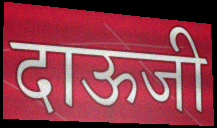
दाऊजी